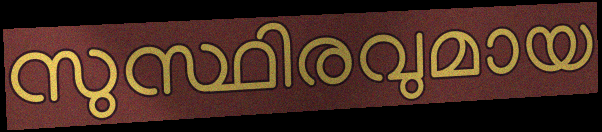
സുസ്ഥിരവുമായ